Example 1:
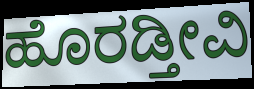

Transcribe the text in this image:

ಹೊರಡ್ತೀವಿ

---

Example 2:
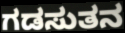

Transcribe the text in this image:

ಗಡಸುತನ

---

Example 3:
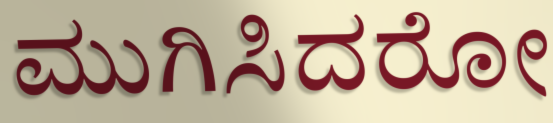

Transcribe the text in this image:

ಮುಗಿಸಿದರೋ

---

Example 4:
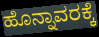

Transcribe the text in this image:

ಹೊನ್ನಾವರಕ್ಕೆ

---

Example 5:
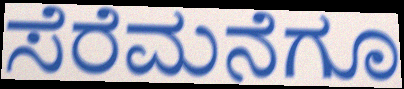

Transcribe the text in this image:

ಸೆರೆಮನೆಗೂ